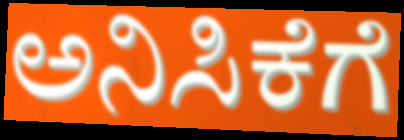
ಅನಿಸಿಕೆಗೆ